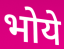
भोये